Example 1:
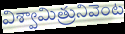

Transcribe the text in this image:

విశ్వామిత్రునివెంట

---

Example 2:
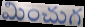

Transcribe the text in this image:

మించుగ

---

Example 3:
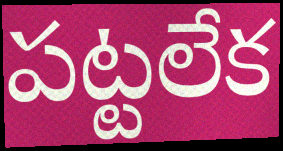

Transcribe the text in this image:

పట్టలేక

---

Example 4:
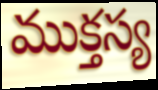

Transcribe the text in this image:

ముక్తస్య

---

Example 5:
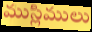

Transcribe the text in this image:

ముస్లిములు